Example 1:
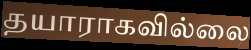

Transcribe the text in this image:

தயாராகவில்லை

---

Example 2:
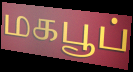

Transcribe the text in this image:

மகபூப்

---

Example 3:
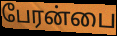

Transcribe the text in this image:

பேரன்பை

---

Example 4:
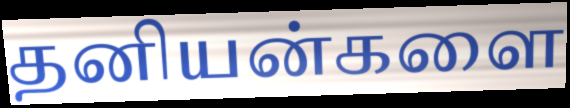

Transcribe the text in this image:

தனியன்களை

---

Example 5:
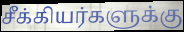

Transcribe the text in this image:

சீக்கியர்களுக்கு